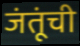
जंतूंची